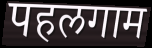
पहलगाम